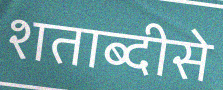
शताब्दीसे